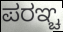
ಪರಞ್ಚ